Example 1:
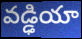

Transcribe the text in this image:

వడ్ఢియా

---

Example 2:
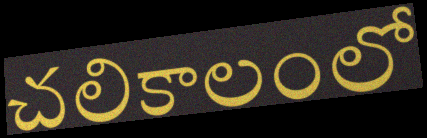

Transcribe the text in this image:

చలికాలంలో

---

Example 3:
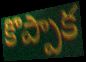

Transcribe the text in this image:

కొప్పాక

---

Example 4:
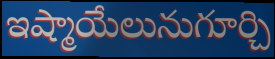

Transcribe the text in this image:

ఇష్మాయేలునుగూర్చి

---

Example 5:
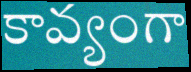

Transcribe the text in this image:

కావ్యంగా